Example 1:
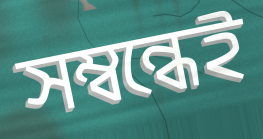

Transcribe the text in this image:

সম্বন্ধেই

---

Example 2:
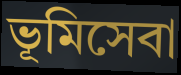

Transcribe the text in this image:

ভূমিসেবা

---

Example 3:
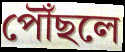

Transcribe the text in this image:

পৌঁছলে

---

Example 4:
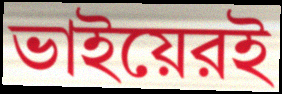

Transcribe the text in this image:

ভাইয়েরই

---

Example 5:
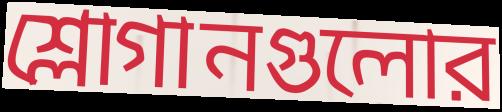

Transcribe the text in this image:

শ্লোগানগুলোর